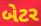
બેટર